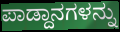
ಪಾಡ್ದಾನಗಳನ್ನು